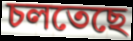
চলতেছে